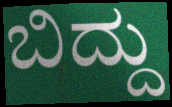
ಬಿದ್ದು